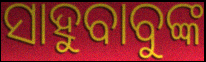
ସାହୁବାବୁଙ୍କ